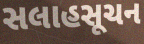
સલાહસૂચન